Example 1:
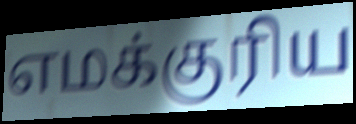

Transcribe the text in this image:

எமக்குரிய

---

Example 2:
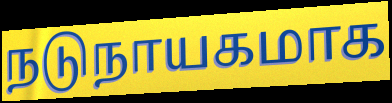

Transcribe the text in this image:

நடுநாயகமாக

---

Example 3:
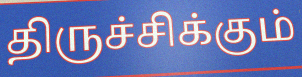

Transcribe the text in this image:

திருச்சிக்கும்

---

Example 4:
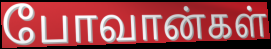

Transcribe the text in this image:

போவான்கள்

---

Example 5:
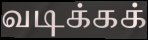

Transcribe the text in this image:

வடிக்கக்